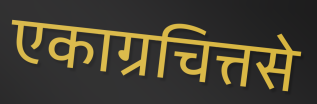
एकाग्रचित्तसे